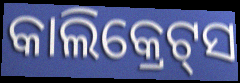
କାଲିକ୍ରେଟ୍‍ସ